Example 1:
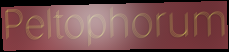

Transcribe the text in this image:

Peltophorum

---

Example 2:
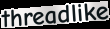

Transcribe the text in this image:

threadlike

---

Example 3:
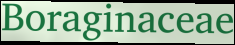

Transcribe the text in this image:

Boraginaceae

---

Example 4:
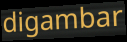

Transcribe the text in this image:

digambar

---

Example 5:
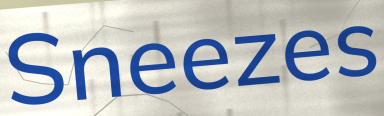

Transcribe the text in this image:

Sneezes